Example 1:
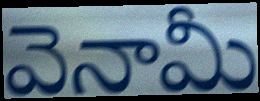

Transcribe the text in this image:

వెనామీ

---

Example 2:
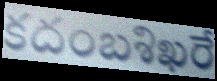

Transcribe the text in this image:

కదంబశిఖరే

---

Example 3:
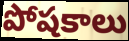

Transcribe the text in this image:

పోషకాలు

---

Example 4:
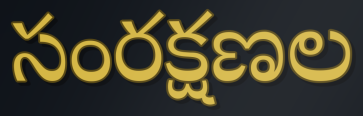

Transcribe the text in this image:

సంరక్షణల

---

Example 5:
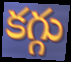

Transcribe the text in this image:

కగ్గు